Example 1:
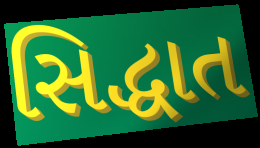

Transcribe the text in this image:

સિદ્ધાત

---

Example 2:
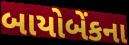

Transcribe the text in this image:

બાયોબેંકના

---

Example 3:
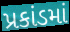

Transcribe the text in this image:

પ્રકાંડમાં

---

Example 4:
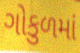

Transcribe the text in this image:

ગોકુળમાં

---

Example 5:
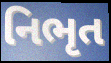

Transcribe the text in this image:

નિભૃત